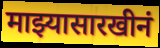
माझ्यासारखीनं